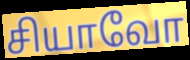
சியாவோ